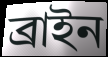
ব্রাইন